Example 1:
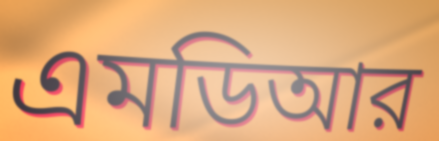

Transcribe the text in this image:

এমডিআর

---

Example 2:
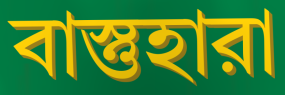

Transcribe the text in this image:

বাস্তুহারা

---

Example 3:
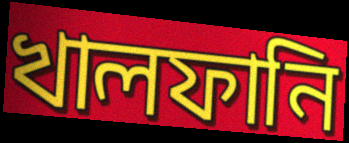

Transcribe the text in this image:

খালফানি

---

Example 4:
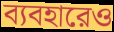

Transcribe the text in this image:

ব্যবহারেও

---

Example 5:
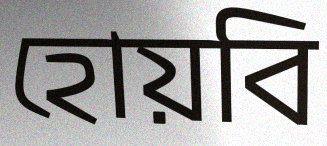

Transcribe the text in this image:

হোয়বি